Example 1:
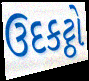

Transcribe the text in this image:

ઉદકટ્ઠો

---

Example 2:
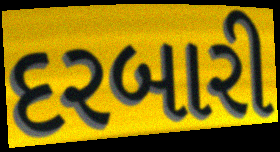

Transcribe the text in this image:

દરબારી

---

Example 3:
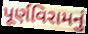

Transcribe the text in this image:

પૂર્ણવિરામનું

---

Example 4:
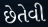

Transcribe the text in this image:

છેતેવી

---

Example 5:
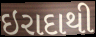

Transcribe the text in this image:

ઇરાદાથી